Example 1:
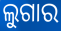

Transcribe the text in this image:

ଲୁଗାର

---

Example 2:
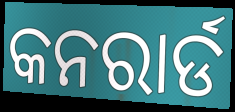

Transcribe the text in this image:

କନରାର୍ଡ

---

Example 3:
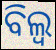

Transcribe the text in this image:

ବିଲ୍ଵ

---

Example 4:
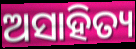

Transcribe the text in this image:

ଅସାହିତ୍ୟ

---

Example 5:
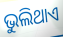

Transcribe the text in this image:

ଭୁଲିଥାଏ